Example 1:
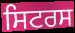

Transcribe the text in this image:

ਸਿਟਰਸ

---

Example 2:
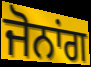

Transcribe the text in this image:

ਜੋਨਾਂਗ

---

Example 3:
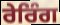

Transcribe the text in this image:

ਰੇਰਿੰਗ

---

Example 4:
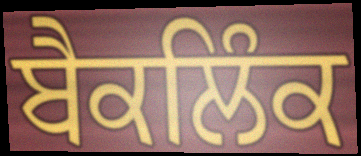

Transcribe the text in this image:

ਬੈਕਲਿੰਕ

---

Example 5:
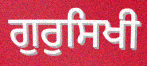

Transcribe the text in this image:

ਗੁਰੁਸਿਖੀ